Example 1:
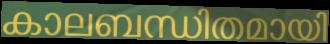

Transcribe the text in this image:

കാലബന്ധിതമായി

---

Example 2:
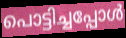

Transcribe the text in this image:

പൊട്ടിച്ചപ്പോൾ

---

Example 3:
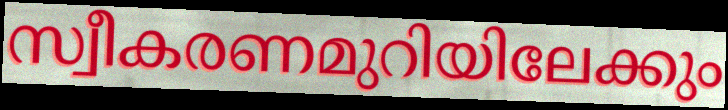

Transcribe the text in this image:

സ്വീകരണമുറിയിലേക്കും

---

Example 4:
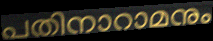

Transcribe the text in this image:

പതിനാറാമനും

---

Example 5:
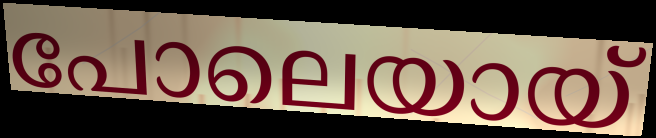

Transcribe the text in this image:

പോലെയായ്